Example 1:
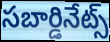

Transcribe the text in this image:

సబార్డినేట్స్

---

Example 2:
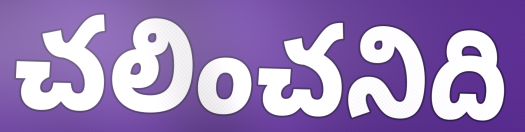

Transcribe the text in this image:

చలించనిది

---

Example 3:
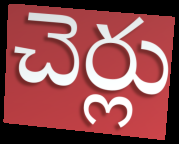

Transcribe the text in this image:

చెర్లు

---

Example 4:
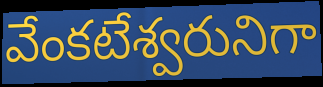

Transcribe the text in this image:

వేంకటేశ్వరునిగా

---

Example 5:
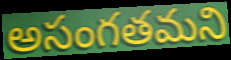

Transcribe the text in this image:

అసంగతమని